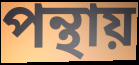
পন্থায়